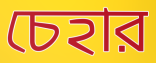
চেহার